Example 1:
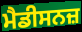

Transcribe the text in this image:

ਮੈਡੀਸਨਜ਼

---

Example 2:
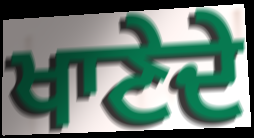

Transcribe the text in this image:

ਖਾਣੇਦੇ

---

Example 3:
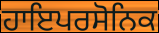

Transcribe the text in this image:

ਹਾਇਪਰਸੋਨਿਕ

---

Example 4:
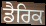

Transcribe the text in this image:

ਡੈਰਿਕ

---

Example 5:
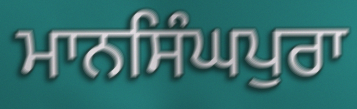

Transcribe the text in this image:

ਮਾਨਸਿੰਘਪੁਰਾ